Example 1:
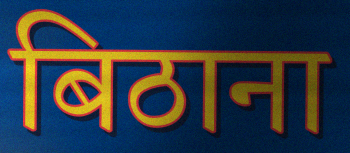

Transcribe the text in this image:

बिठाना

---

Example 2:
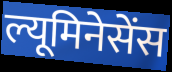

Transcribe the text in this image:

ल्यूमिनेसेंस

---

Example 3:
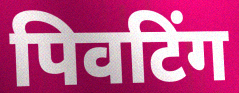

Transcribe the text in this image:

पिवटिंग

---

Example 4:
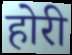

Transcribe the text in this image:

होरी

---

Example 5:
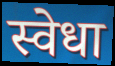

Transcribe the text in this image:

स्वेधा